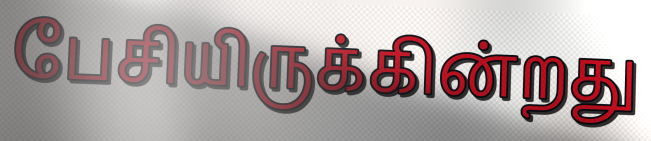
பேசியிருக்கின்றது